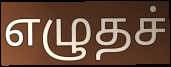
எழுதச்